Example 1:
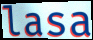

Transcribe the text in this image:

lasa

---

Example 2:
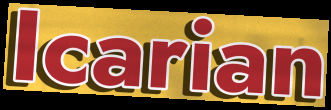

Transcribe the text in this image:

Icarian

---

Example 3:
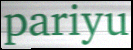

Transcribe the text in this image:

pariyu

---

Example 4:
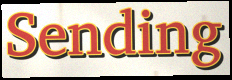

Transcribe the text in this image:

Sending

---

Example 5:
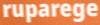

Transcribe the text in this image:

ruparege